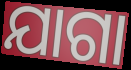
ଯାଗା